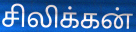
சிலிக்கன்